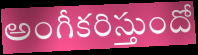
అంగీకరిస్తుందో